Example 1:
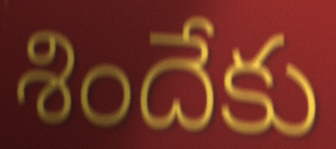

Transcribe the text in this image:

శిందేకు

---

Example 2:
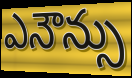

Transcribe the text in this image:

ఎనౌన్సు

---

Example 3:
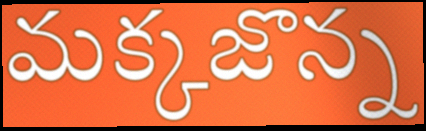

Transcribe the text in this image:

మక్కజొన్న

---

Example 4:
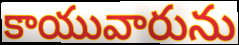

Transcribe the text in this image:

కాయువారును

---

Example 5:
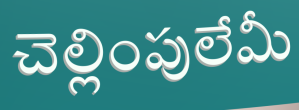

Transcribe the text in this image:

చెల్లింపులేమీ